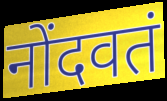
नोंदवतं